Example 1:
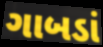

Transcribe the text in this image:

ગાબડાં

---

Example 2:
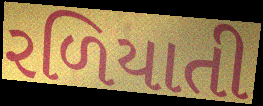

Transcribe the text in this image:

રળિયાતી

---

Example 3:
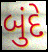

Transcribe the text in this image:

બુંદે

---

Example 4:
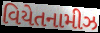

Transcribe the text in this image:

વિયેતનામીઝ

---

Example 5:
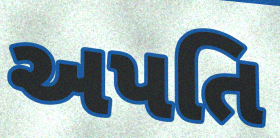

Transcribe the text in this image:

અપતિ